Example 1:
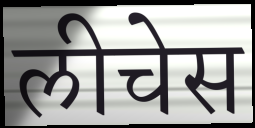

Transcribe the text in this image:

लीचेस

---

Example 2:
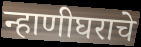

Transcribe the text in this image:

न्हाणीघराचे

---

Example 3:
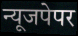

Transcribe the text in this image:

न्यूजपेपर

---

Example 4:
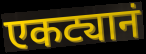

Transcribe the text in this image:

एकट्यानं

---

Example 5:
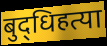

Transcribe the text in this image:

बुद्धिहत्या